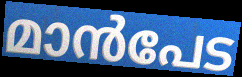
മാൻപേട